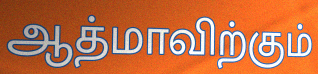
ஆத்மாவிற்கும்